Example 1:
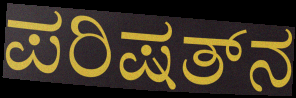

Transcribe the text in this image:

ಪರಿಷತ್‌ನ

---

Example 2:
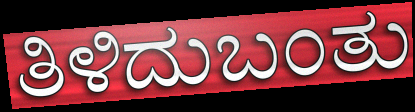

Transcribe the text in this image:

ತಿಳಿದುಬಂತು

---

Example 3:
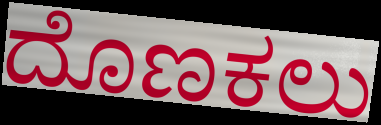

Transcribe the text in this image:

ದೊಣಕಲು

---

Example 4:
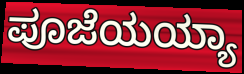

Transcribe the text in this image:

ಪೂಜೆಯಯ್ಯಾ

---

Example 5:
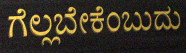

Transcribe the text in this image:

ಗೆಲ್ಲಬೇಕೆಂಬುದು